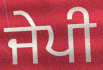
ਜੇਪੀ